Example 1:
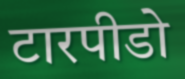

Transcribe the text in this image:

टारपीडो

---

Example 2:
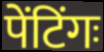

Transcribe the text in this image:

पेंटिंगः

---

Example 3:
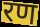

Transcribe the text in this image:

रण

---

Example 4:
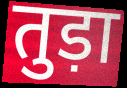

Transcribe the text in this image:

तुड़ा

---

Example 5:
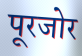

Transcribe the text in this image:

पूरजोर